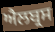
ਐਲਬ੍ਰਸ